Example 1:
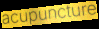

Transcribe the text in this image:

acupuncture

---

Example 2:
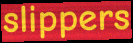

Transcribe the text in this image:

slippers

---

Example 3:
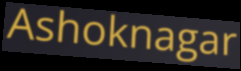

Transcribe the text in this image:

Ashoknagar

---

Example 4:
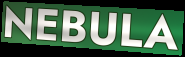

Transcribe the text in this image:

NEBULA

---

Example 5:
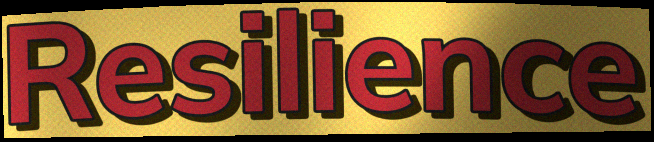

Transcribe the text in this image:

Resilience